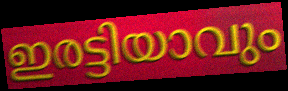
ഇരട്ടിയാവും